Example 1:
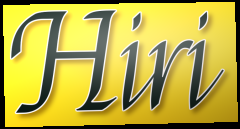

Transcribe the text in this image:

Hiri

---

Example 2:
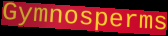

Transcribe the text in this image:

Gymnosperms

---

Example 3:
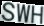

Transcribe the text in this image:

SWH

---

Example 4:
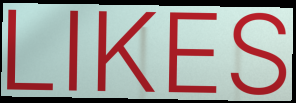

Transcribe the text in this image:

LIKES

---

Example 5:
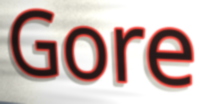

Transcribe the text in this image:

Gore